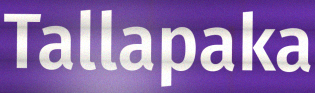
Tallapaka